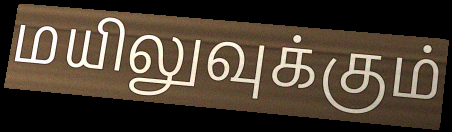
மயிலுவுக்கும்